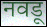
नवडू